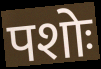
पशोः